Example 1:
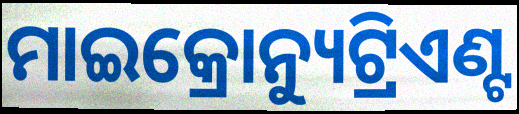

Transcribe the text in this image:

ମାଇକ୍ରୋନ୍ୟୁଟ୍ରିଏଣ୍ଟ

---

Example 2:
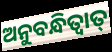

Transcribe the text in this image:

ଅନୁବନ୍ଧିତ୍ଵାତ୍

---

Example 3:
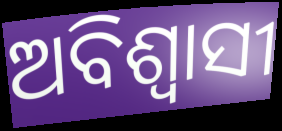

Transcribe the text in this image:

ଅବିଶ୍ଵାସୀ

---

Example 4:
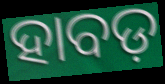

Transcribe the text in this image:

ହାବଡ଼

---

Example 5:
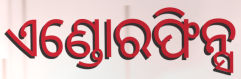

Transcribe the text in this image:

ଏଣ୍ଡୋରଫିନ୍ସ